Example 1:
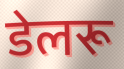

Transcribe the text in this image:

डेलरू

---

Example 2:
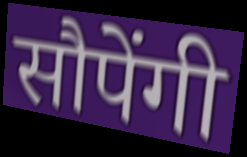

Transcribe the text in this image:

सौपेंगी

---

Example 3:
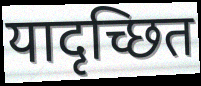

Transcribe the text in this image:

यादृच्छित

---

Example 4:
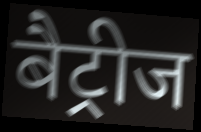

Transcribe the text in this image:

बैट्रीज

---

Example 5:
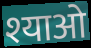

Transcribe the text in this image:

श्याओ